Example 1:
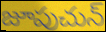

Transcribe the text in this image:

జూపుచున్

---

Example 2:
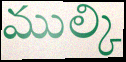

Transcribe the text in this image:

ముల్కి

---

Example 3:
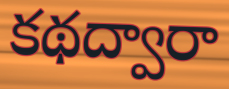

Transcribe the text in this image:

కథద్వారా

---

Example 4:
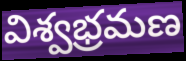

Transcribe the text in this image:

విశ్వభ్రమణ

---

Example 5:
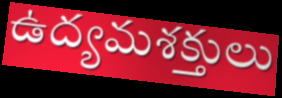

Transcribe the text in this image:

ఉద్యమశక్తులు